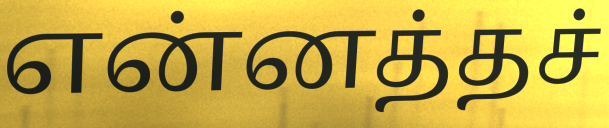
என்னத்தச்